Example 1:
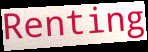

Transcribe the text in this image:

Renting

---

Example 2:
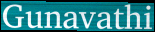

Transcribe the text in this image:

Gunavathi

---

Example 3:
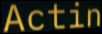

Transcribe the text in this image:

Actin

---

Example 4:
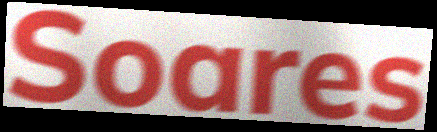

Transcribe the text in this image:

Soares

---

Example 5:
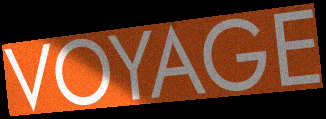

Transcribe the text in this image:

VOYAGE